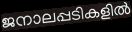
ജനാലപ്പടികളിൽ